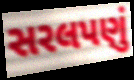
સરલપણું